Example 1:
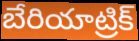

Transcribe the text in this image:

బేరియాట్రిక్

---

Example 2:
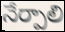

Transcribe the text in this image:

నేర్పాలి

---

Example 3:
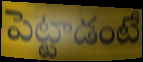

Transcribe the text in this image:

పెట్టాడంటే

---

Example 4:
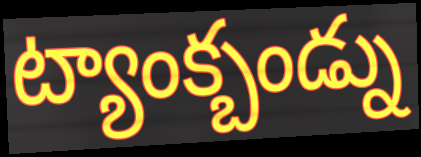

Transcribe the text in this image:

ట్యాంక్బండ్ను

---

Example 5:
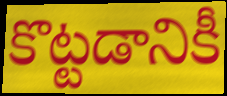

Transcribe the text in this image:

కొట్టడానికీ